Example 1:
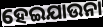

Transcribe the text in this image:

ହେଇଯାଉନା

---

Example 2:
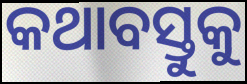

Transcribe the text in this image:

କଥାବସ୍ତୁକୁ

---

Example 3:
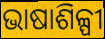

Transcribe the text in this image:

ଭାଷାଶିଳ୍ପୀ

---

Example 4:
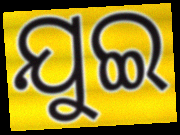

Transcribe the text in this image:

ଯୁଇ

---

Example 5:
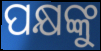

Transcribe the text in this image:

ପକ୍ଷଙ୍କୁ